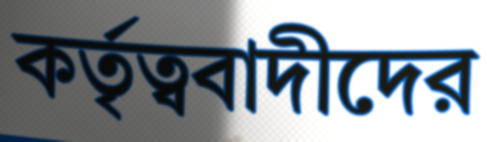
কর্তৃত্ববাদীদের